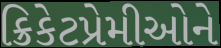
ક્રિકેટપ્રેમીઓને